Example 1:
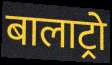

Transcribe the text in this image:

बालाट्रो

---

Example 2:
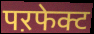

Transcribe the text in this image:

पऱफेक्ट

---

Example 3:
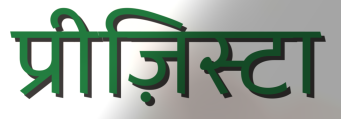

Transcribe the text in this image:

प्रीज़िस्टा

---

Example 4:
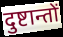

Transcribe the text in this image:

दुष्टान्तों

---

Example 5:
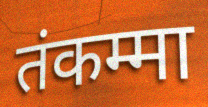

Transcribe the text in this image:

तंकम्मा